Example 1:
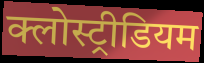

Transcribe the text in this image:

क्लोस्ट्रीडियम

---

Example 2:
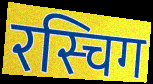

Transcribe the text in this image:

रस्चिग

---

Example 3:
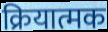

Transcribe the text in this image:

क्रियात्मक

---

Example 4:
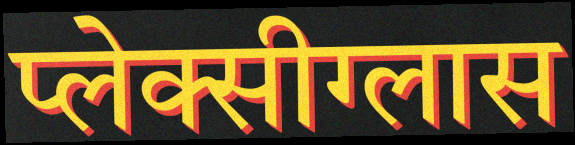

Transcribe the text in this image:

प्लेक्सीग्लास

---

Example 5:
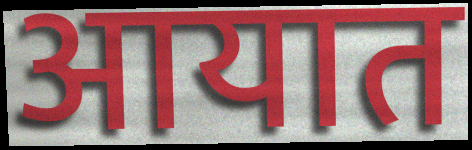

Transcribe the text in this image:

आयात